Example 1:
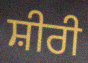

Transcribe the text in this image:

ਸ਼ੀਰੀ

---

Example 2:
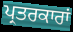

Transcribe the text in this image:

ਪ੍ਰਤਰਕਾਰਾਂ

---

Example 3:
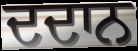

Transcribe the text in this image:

ਦਦਾਨ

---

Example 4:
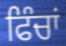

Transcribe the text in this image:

ਫਿੰਚਾਂ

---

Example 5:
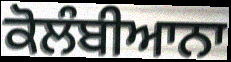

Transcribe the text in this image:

ਕੋਲੰਬੀਆਨਾ